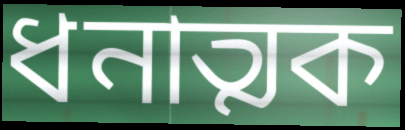
ধনাত্মক